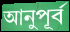
আনুপূর্ব